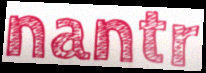
nantr